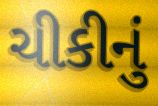
ચીકીનું